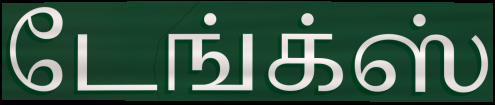
டேங்க்ஸ்